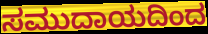
ಸಮುದಾಯದಿಂದ